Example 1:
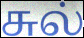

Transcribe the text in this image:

சுல்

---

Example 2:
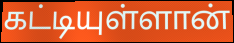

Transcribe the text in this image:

கட்டியுள்ளான்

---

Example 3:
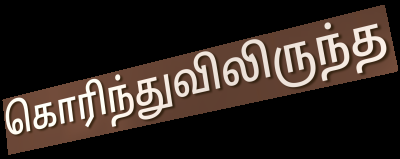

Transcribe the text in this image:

கொரிந்துவிலிருந்த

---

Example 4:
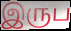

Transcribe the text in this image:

இருப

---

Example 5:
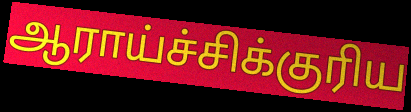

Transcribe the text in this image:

ஆராய்ச்சிக்குரிய